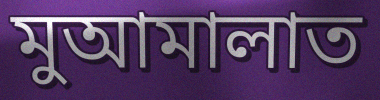
মুআমালাত